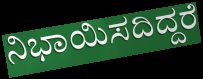
ನಿಭಾಯಿಸದಿದ್ದರೆ